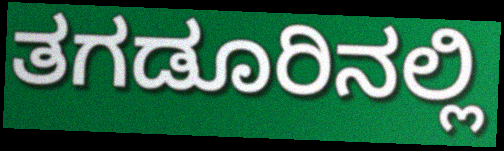
ತಗಡೂರಿನಲ್ಲಿ